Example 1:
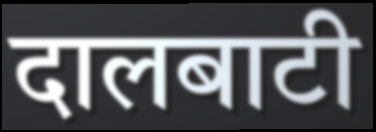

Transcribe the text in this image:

दालबाटी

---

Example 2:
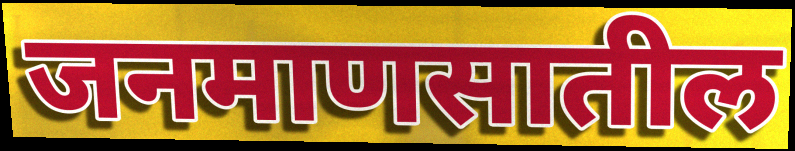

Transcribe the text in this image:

जनमाणसातील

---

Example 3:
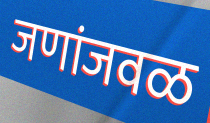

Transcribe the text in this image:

जणांजवळ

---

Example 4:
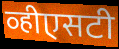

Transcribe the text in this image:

व्हीएसटी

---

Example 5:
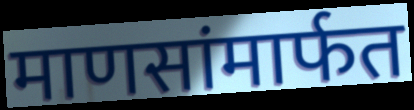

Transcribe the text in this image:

माणसांमार्फत